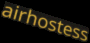
airhostess